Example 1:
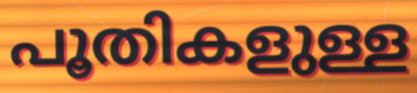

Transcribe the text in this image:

പൂതികളുള്ള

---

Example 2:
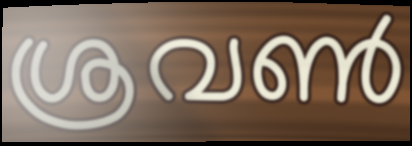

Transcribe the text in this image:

ശ്രവൺ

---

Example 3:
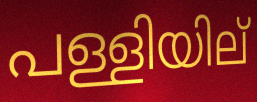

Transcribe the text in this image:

പള്ളിയില്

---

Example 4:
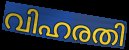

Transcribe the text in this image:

വിഹരതി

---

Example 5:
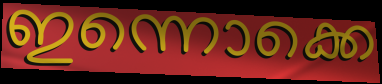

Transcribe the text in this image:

ഇന്നൊക്കെ